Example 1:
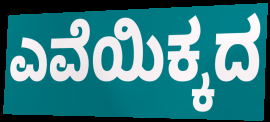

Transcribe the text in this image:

ಎವೆಯಿಕ್ಕದ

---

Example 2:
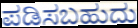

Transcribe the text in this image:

ಪಡಿಸಬಹುದು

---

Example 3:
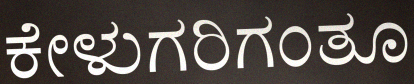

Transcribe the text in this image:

ಕೇಳುಗರಿಗಂತೂ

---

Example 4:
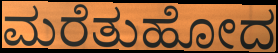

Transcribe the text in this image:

ಮರೆತುಹೋದ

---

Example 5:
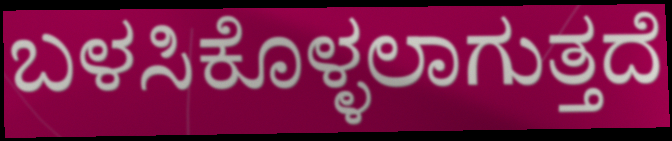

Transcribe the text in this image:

ಬಳಸಿಕೊಳ್ಳಲಾಗುತ್ತದೆ